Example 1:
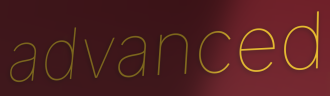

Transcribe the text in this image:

advanced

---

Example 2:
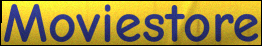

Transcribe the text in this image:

Moviestore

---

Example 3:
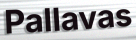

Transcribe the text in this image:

Pallavas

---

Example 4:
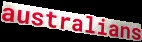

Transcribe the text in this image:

australians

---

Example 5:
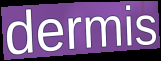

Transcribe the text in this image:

dermis